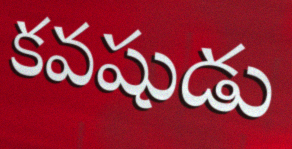
కవషుడు